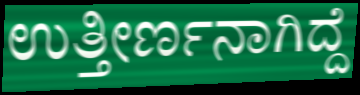
ಉತ್ತೀರ್ಣನಾಗಿದ್ದೆ